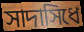
সাদাসিধে